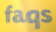
faqs